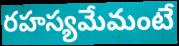
రహస్యమేమంటే